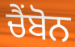
ਚੈਂਬੋਨ